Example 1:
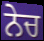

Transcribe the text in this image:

ਨੇਚ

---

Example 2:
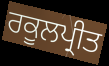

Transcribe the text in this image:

ਰਕੂਲਪ੍ਰੀਤ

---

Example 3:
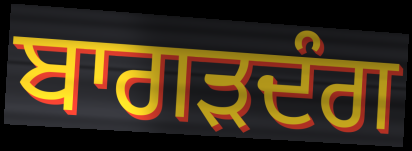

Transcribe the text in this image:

ਬਾਗੜਦੰਗ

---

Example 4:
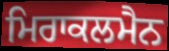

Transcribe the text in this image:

ਮਿਰਾਕਲਮੈਨ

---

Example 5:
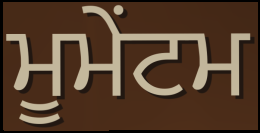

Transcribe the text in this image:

ਮੂਮੇਂਟਮ